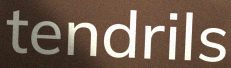
tendrils